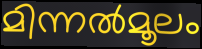
മിന്നൽമൂലം